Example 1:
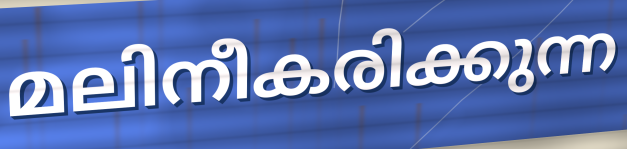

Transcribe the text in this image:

മലിനീകരിക്കുന്ന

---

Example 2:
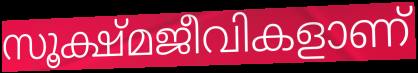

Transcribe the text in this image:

സൂക്ഷ്മജീവികളാണ്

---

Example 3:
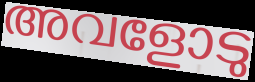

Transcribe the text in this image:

അവളോടു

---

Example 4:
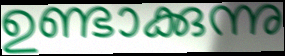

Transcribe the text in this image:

ഉണ്ടാക്കുന്നു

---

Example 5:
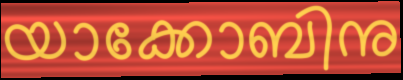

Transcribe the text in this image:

യാക്കോബിനു